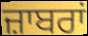
ਜ਼ਾਬਰਾਂ